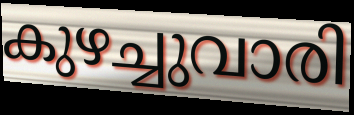
കുഴച്ചുവാരി